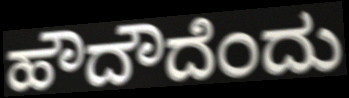
ಹೌದೌದೆಂದು